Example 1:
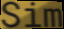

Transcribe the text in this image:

Sim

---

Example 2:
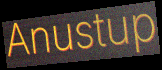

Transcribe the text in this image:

Anustup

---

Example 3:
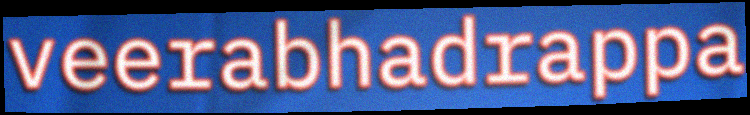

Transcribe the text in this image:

veerabhadrappa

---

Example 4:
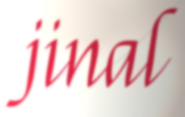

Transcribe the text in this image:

jinal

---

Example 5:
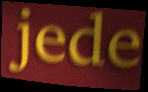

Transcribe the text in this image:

jede